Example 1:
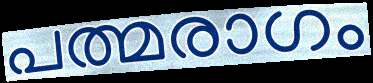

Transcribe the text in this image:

പത്മരാഗം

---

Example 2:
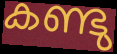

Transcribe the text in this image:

കണ്ടു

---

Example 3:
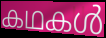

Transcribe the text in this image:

കഥകൾ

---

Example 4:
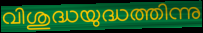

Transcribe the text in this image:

വിശുദ്ധയുദ്ധത്തിന്നു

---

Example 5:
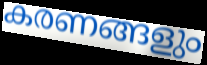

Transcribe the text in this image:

കരണങ്ങളും